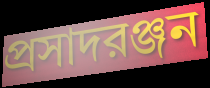
প্রসাদরঞ্জন